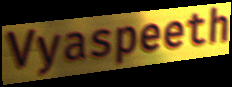
Vyaspeeth